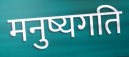
मनुष्यगति